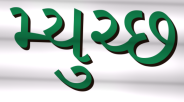
મ્યુચ્છ